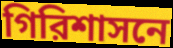
গিরিশাসনে